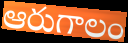
ఆరుగాలం